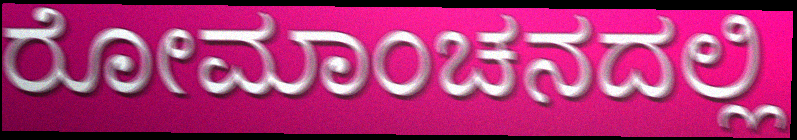
ರೋಮಾಂಚನದಲ್ಲಿ